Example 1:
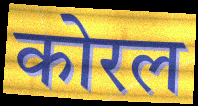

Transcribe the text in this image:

कोरल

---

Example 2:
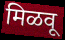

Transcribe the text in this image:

मिळवू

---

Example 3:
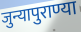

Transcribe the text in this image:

जुन्यापुराण्या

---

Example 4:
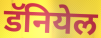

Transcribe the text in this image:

डॅनियेल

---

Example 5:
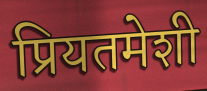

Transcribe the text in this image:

प्रियतमेशी